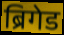
ब्रिगेड